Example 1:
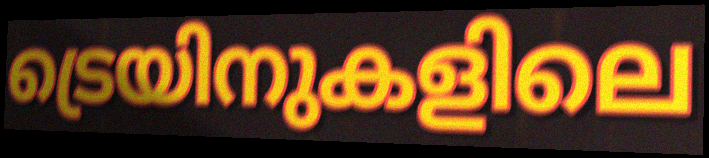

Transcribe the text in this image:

ട്രെയിനുകളിലെ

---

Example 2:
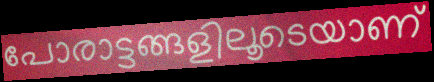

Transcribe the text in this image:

പോരാട്ടങ്ങളിലൂടെയാണ്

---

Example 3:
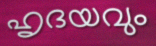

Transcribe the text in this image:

ഹൃദയവും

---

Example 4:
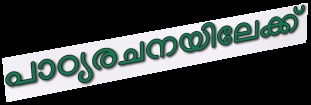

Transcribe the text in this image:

പാഠ്യരചനയിലേക്ക്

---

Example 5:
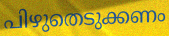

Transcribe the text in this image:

പിഴുതെടുക്കണം